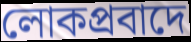
লোকপ্রবাদে